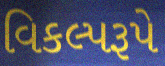
વિકલ્પરૂપે